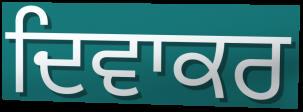
ਦਿਵਾਕਰ